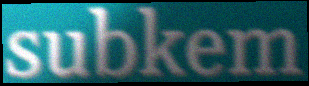
subkem